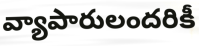
వ్యాపారులందరికీ